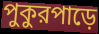
পুকুরপাড়ে